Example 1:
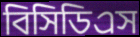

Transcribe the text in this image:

বিসিডিএস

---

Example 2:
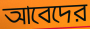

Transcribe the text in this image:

আবেদের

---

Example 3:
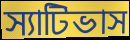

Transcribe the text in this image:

স্যাটিভাস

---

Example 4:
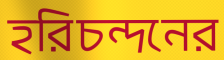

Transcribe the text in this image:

হরিচন্দনের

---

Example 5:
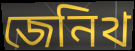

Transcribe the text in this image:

জেনিথ